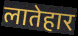
लातेहार